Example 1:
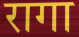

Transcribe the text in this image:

रागा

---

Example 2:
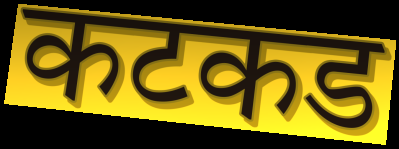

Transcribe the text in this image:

कटकड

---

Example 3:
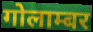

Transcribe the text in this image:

गोलाम्बर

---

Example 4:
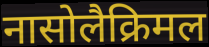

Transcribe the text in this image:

नासोलैक्रिमल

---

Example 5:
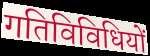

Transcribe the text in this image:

गतिविविधियों